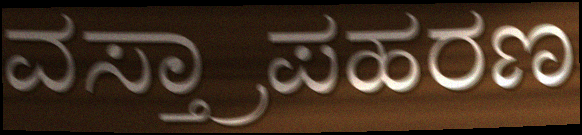
ವಸ್ತ್ರಾಪಹರಣ